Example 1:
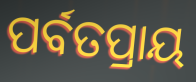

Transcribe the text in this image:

ପର୍ବତପ୍ରାୟ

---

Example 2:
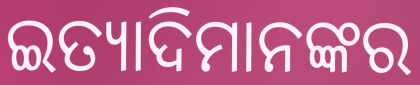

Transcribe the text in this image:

ଇତ୍ୟାଦିମାନଙ୍କର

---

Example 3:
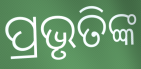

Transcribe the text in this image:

ପ୍ରଭୃତିଙ୍କ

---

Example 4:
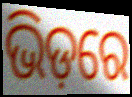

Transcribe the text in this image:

ଭିଡ଼ରେ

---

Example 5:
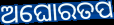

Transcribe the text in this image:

ଅଘୋରତପ